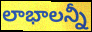
లాభాలన్నీ